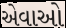
એવાઓ